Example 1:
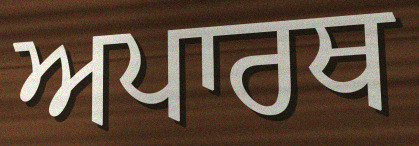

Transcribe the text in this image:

ਅਪਾਰਥ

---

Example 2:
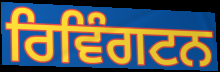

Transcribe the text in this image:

ਰਿਵਿੰਗਟਨ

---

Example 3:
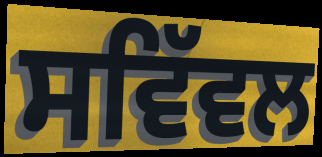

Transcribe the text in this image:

ਸਵਿੱਵਲ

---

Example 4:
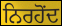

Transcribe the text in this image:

ਨਿਰਹੋਂਦ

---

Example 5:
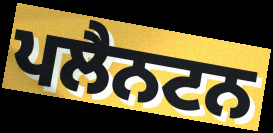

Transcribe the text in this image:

ਪਲੈਨਟਨ